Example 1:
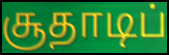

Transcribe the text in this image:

சூதாடிப்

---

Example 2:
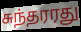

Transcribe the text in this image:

சுந்தரரது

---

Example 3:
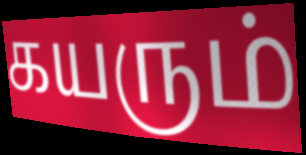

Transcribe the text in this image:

கயரும்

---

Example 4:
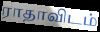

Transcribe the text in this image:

ராதாவிடம்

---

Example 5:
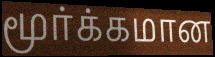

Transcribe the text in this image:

மூர்க்கமான